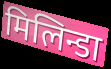
मिलिन्डा